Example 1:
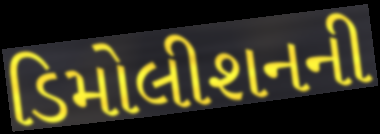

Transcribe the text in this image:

ડિમોલીશનની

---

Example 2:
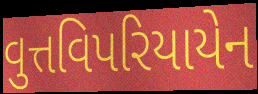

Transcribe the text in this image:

વુત્તવિપરિયાયેન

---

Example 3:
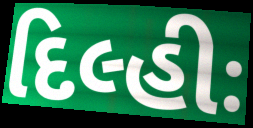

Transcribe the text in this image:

દિલ્હીઃ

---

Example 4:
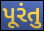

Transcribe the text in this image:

પૂરંતુ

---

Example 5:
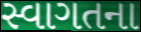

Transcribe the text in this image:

સ્વાગતના